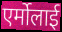
एर्मोलाई